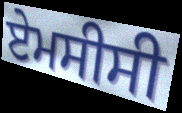
ਏਮਸੀਸੀ